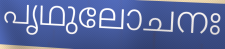
പൃഥുലോചനഃ